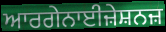
ਆਰਗੇਨਾਈਜ਼ੇਸ਼ਨਜ਼